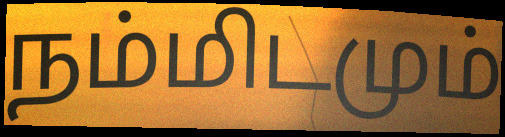
நம்மிடமும்